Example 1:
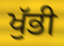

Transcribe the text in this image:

ਖੁੱਭੀ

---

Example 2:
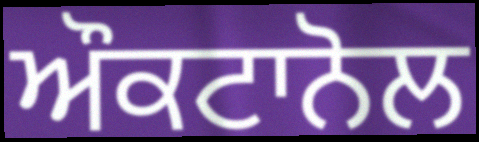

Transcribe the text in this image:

ਔਕਟਾਨੋਲ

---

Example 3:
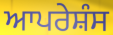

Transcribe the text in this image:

ਆਪਰੇਸ਼ੰਸ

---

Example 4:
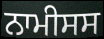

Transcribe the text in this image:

ਨਾਮੀਸਸ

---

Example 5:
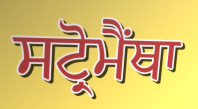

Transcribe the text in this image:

ਸਟ੍ਰੋਮੈਂਥਾ